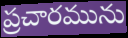
ప్రచారమును